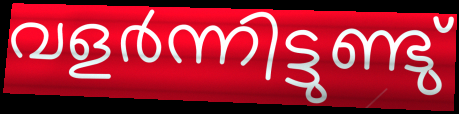
വളർന്നിട്ടുണ്ടു്